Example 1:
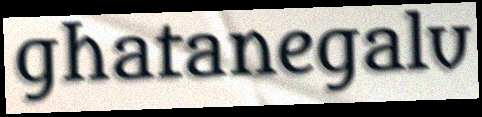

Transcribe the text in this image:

ghatanegalu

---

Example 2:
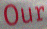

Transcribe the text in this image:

Our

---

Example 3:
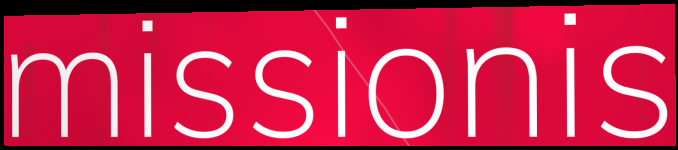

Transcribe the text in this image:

missionis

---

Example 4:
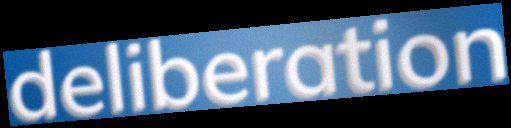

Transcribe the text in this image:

deliberation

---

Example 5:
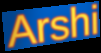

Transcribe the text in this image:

Arshi